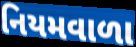
નિયમવાળા